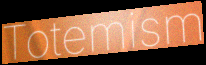
Totemism